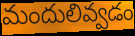
మందులివ్వడం